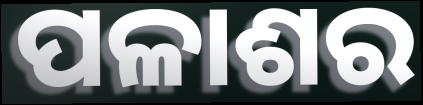
ପଳାଶର